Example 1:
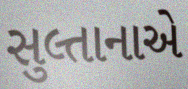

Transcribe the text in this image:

સુલ્તાનાએ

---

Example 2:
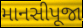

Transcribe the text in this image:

માનસીપૂજા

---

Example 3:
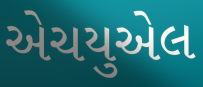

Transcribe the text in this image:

એચયુએલ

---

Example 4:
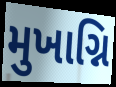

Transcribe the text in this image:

મુખાગ્નિ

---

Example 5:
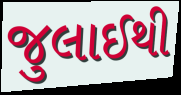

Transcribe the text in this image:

જુલાઈથી